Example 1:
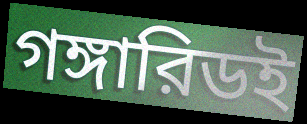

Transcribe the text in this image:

গঙ্গারিডই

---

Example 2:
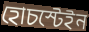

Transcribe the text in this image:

হোচস্টেইন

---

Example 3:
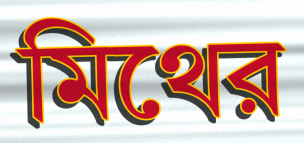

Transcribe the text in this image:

মিথের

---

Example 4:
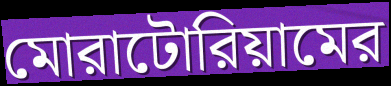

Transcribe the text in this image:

মোরাটোরিয়ামের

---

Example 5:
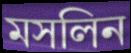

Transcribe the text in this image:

মসলিন